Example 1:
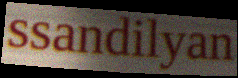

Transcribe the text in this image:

ssandilyan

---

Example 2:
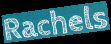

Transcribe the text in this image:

Rachels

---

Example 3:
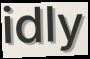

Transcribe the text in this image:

idly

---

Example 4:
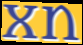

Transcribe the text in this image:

xn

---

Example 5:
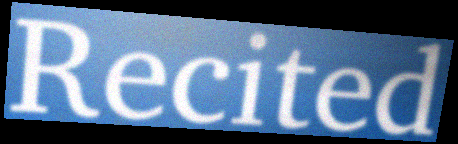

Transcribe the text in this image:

Recited